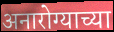
अनारोग्याच्या